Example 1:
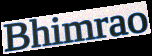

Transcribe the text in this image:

Bhimrao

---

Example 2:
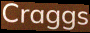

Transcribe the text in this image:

Craggs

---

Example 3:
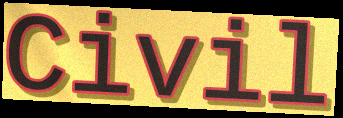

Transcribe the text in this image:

Civil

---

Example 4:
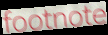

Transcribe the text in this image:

footnote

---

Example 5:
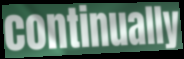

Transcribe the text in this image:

continually